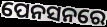
ପେନସନରେ